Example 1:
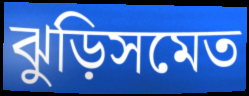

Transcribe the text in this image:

ঝুড়িসমেত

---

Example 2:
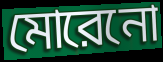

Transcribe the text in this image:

মোরেনো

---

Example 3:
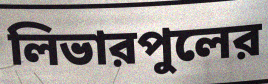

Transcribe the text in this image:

লিভারপুলের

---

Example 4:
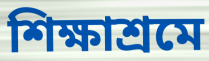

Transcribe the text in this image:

শিক্ষাশ্রমে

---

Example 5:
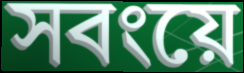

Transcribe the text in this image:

সবংয়ে